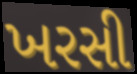
ખરસી